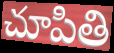
చూపితి